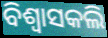
ବିଶ୍ଵାସକଲି